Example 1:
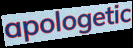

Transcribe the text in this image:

apologetic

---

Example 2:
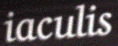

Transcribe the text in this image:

iaculis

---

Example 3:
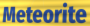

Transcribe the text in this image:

Meteorite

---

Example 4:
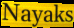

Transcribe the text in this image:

Nayaks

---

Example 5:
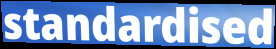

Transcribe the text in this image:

standardised